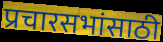
प्रचारसभांसाठी